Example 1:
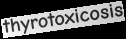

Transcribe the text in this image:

thyrotoxicosis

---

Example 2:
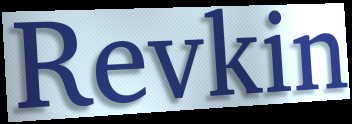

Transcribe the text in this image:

Revkin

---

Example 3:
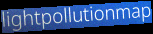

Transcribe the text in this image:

lightpollutionmap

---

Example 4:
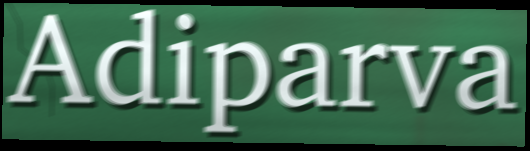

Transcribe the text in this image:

Adiparva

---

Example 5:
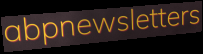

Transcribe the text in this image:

abpnewsletters